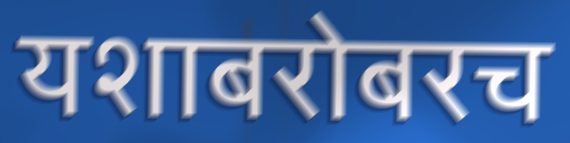
यशाबरोबरच